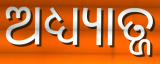
ଅଧ୍ୟ୍ୟାତ୍ଜ